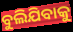
ବୁଲିଯିବାକୁ